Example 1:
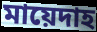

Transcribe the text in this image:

মায়েদাহ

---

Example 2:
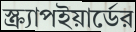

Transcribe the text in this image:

স্ক্র্যাপইয়ার্ডের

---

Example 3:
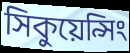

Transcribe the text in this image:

সিকুয়েন্সিং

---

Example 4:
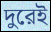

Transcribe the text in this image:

দুরেই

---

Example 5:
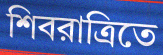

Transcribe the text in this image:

শিবরাত্রিতে